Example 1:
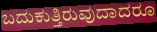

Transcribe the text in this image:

ಬದುಕುತ್ತಿರುವುದಾದರೂ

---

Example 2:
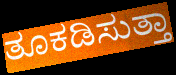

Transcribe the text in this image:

ತೂಕಡಿಸುತ್ತಾ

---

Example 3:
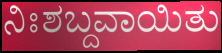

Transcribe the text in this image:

ನಿಃಶಬ್ದವಾಯಿತು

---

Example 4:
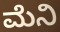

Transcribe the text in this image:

ಮೆನಿ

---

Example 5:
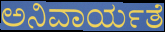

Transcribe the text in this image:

ಅನಿವಾರ್ಯತೆ